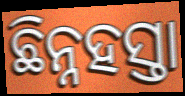
ଛିନ୍ନହସ୍ତା